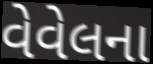
વેવેલના